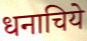
धनाचिये